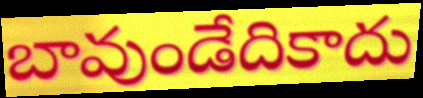
బావుండేదికాదు